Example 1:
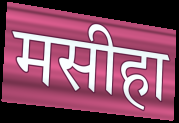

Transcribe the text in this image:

मसीहा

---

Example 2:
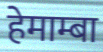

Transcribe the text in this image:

हेमाम्बा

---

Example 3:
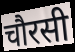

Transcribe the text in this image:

चौरसी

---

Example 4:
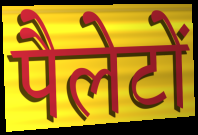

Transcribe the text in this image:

पैलेटों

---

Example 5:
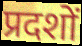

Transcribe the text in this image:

प्रदशों